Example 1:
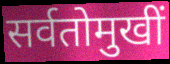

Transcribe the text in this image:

सर्वतोमुखीं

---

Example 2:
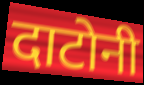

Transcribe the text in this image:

दाटोनी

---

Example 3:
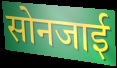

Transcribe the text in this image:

सोनजाई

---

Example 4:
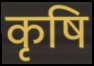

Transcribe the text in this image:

कृषि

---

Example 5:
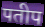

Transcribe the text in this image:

पतीप